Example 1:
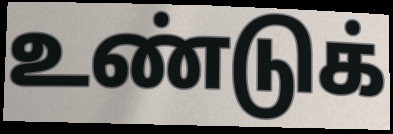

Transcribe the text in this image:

உண்டுக்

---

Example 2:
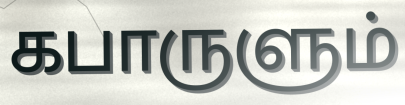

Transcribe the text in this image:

கபாருளும்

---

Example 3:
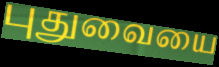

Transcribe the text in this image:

புதுவையை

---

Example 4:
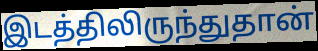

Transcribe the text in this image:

இடத்திலிருந்துதான்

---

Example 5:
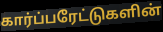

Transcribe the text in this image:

கார்ப்பரேட்டுகளின்